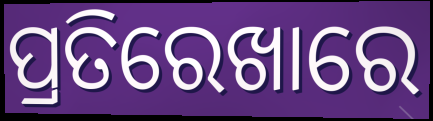
ପ୍ରତିରେଖାରେ